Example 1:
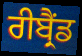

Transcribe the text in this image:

ਰੀਬ੍ਰੈਂਡ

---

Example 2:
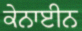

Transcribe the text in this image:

ਕੇਨਾਈਨ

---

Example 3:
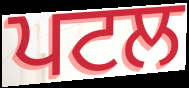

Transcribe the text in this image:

ਪਟਲ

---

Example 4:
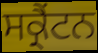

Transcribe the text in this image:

ਸਕ੍ਰੈਂਟਨ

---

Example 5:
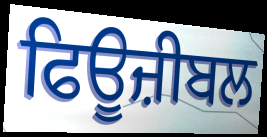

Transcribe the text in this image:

ਫਿਊਜ਼ੀਬਲ